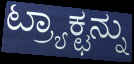
ಟ್ರ್ಯಾಕ್ಟನ್ನು